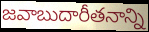
జవాబుదారీతనాన్ని